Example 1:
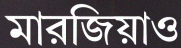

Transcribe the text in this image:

মারজিয়াও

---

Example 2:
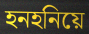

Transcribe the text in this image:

হনহনিয়ে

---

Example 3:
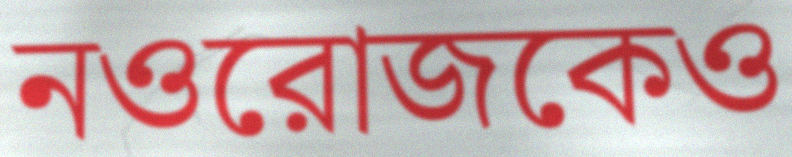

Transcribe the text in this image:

নওরোজকেও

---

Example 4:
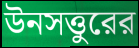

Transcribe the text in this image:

উনসত্তুরের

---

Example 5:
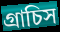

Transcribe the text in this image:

গ্রাচিস